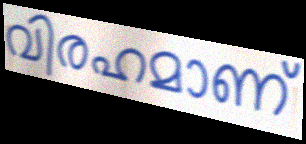
വിരഹമാണ്